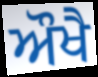
ਔਖੈ